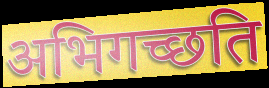
अभिगच्छति